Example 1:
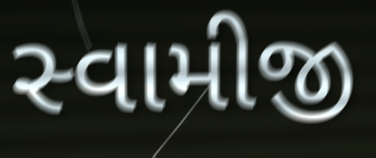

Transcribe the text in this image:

સ્વામીજી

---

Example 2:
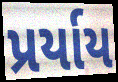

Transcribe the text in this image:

પ્રર્યાય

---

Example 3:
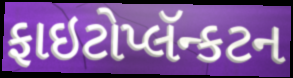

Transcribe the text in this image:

ફાઇટોપ્લૅન્કટન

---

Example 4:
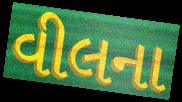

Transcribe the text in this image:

વીલના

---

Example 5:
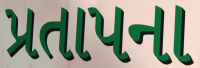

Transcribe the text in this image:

પ્રતાપના